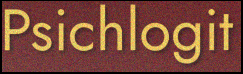
Psichlogit